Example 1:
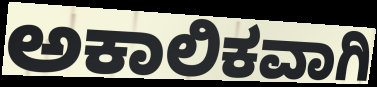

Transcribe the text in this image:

ಅಕಾಲಿಕವಾಗಿ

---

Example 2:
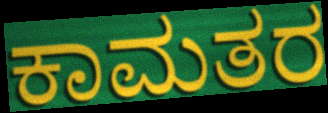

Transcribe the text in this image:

ಕಾಮತರ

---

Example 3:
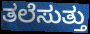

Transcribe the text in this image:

ತಲೆಸುತ್ತು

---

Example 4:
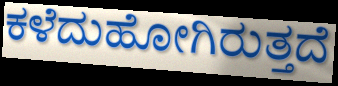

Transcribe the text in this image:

ಕಳೆದುಹೋಗಿರುತ್ತದೆ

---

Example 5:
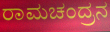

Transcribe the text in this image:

ರಾಮಚಂದ್ರನ